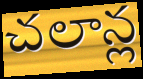
చలాన్ల